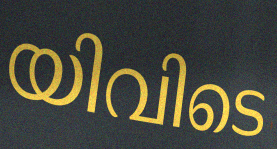
യിവിടെ